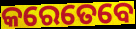
କରେତେବେ